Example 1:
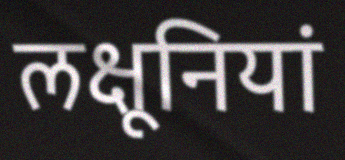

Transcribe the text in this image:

लक्षूनियां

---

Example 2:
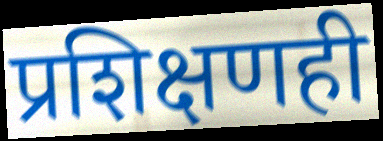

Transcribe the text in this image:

प्रशिक्षणही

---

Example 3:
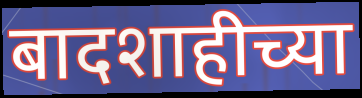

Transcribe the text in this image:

बादशाहीच्या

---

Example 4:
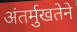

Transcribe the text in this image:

अंतर्मुखतेने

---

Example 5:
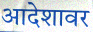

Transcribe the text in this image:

आदेशावर